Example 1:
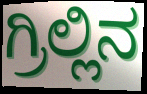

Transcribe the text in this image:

ಗ್ರಿಲ್ಲಿನ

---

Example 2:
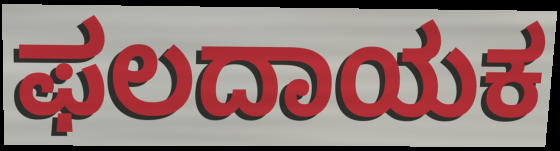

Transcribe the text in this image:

ಫಲದಾಯಕ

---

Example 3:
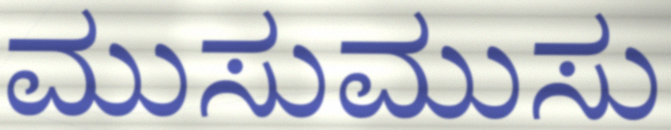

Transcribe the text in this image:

ಮುಸುಮುಸು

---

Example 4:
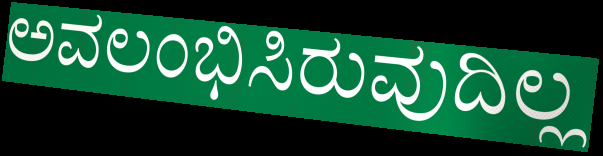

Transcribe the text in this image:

ಅವಲಂಭಿಸಿರುವುದಿಲ್ಲ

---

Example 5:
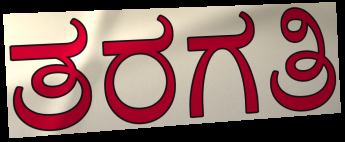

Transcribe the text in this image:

ತರಗತಿ